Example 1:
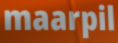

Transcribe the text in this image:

maarpil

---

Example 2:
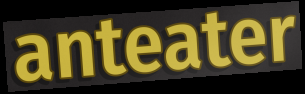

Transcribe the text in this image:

anteater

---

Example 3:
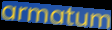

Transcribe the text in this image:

armatum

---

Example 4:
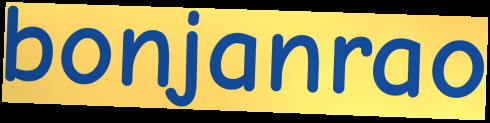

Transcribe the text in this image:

bonjanrao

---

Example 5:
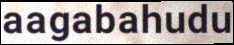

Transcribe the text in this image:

aagabahudu